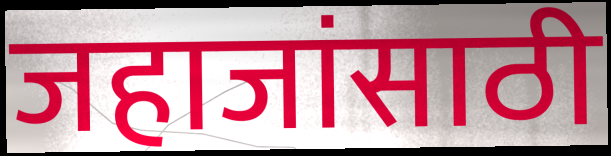
जहाजांसाठी